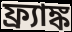
ফ্র্যাঙ্ক